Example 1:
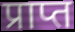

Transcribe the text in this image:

प्राप्‍त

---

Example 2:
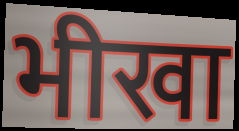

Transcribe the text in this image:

भीखा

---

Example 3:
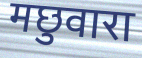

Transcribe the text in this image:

मछुवारा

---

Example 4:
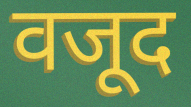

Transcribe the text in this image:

वजूद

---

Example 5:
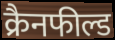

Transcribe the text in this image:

क्रैनफील्ड